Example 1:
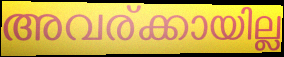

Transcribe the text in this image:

അവര്ക്കായില്ല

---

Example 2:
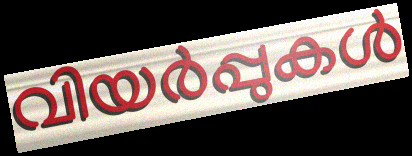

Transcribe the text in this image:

വിയർപ്പുകൾ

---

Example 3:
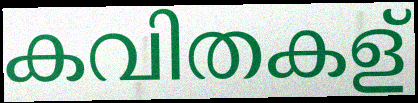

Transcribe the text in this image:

കവിതകള്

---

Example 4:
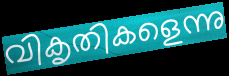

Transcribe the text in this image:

വികൃതികളെന്നു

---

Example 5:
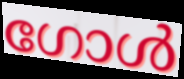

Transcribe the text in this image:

ഗോൾ